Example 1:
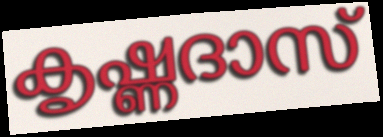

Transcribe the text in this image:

കൃഷ്ണദാസ്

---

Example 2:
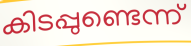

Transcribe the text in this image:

കിടപ്പുണ്ടെന്ന്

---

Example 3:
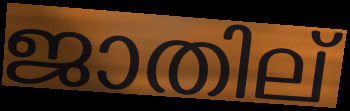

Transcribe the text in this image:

ജാതില്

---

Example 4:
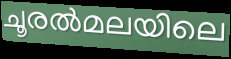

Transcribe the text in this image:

ചൂരൽമലയിലെ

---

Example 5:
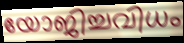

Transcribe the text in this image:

യോജിച്ചവിധം